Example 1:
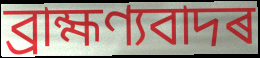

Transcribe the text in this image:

ব্ৰাহ্মণ্যবাদৰ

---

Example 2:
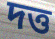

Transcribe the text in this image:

দত্ত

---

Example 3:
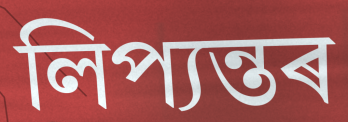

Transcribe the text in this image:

লিপ্যন্তৰ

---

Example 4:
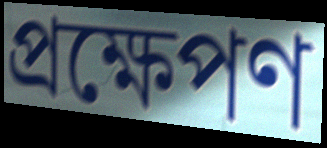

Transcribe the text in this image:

প্ৰক্ষেপণ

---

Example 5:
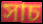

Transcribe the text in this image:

সাচ